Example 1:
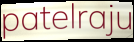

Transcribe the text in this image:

patelraju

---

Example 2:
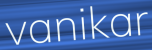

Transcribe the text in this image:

vanikar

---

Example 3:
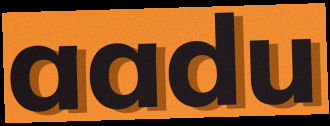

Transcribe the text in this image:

aadu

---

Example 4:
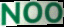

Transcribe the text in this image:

NOO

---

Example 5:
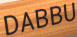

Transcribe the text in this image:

DABBU